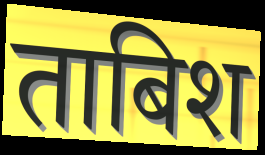
ताबिश